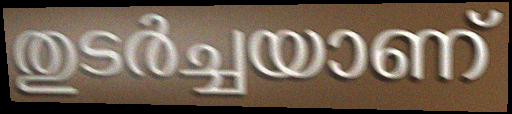
തുടർച്ചയാണ്